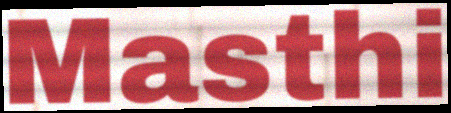
Masthi